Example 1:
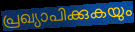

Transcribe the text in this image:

പ്രഖ്യാപിക്കുകയും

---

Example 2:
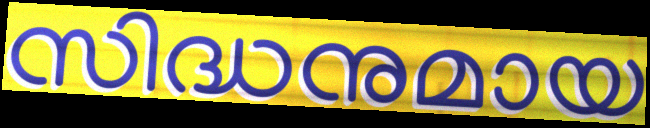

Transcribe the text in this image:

സിദ്ധനുമായ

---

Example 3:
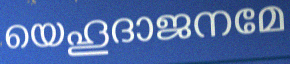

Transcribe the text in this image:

യെഹൂദാജനമേ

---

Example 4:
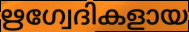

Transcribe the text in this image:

ഋഗ്വേദികളായ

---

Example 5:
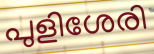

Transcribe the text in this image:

പുളിശേരി